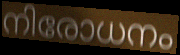
നിരോധനം